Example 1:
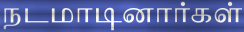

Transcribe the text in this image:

நடமாடினார்கள்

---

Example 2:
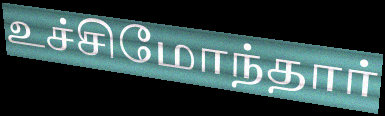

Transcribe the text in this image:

உச்சிமோந்தார்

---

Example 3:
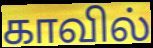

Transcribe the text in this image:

காவில்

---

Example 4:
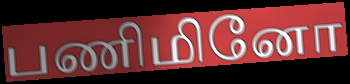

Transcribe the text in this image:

பணிமினோ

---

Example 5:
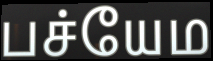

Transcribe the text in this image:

பச்யேம